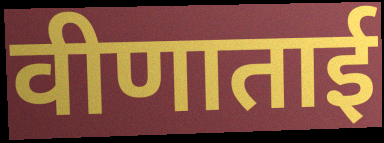
वीणाताई